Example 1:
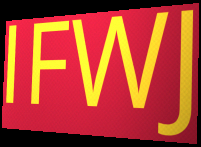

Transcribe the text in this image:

IFWJ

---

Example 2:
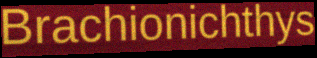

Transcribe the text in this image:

Brachionichthys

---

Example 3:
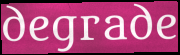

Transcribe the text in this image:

degrade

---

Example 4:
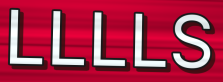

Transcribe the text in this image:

LLLLS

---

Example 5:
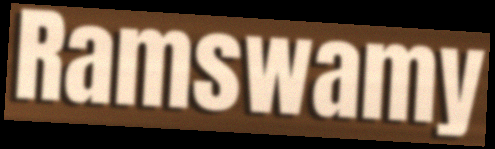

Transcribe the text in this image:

Ramswamy